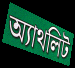
অ্যাথলিট